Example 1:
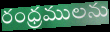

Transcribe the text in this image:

రంధ్రములను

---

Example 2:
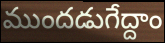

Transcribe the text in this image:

ముందడుగేద్దాం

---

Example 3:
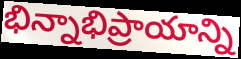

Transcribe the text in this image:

భిన్నాభిప్రాయాన్ని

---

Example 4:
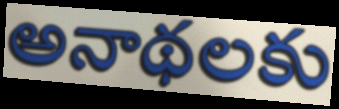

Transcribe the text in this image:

అనాథలకు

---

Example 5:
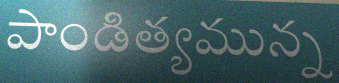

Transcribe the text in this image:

పాండిత్యమున్న